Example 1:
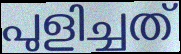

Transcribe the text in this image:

പുളിച്ചത്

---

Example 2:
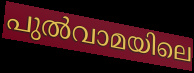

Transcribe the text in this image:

പുൽവാമയിലെ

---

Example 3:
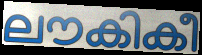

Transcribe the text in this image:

ലൗകികീ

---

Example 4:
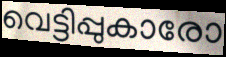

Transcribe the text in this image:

വെട്ടിപ്പുകാരോ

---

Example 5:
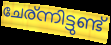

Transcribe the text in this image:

ചേര്ന്നിട്ടുണ്ട്